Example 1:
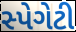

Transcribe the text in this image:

સ્પેગેટી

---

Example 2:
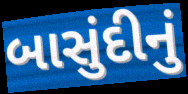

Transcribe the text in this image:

બાસુંદીનું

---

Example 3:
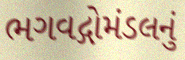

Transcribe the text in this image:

ભગવદ્ગોમંડલનું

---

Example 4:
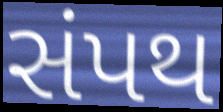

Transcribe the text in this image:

સંપથ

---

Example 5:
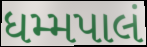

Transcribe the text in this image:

ધમ્મપાલં